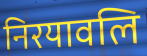
निरयावलि